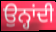
ਉਨ੍ਹਾਂਦੀ